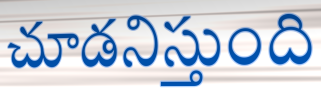
చూడనిస్తుంది